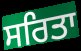
ਸਰਿਤਾ